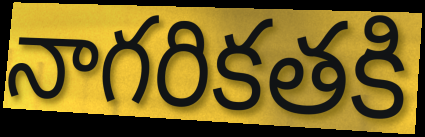
నాగరికతకి